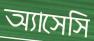
অ্যাসেসি